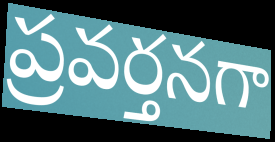
ప్రవర్తనగా